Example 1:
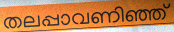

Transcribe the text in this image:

തലപ്പാവണിഞ്ഞ്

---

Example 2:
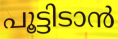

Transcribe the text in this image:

പൂട്ടിടാൻ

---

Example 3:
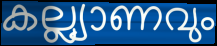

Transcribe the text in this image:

കല്ല്യാണവും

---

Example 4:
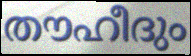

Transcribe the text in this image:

തൗഹീദും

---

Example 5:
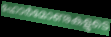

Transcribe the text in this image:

ഹോർമോണുകളുടെ